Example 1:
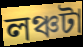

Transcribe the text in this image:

লঞ্চটা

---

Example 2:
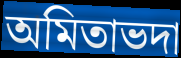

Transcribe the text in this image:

অমিতাভদা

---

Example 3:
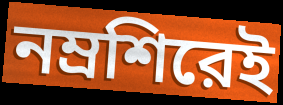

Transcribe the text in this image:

নম্রশিরেই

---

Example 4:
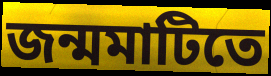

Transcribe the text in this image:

জন্মমাটিতে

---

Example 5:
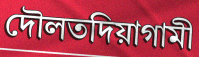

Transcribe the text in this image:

দৌলতদিয়াগামী